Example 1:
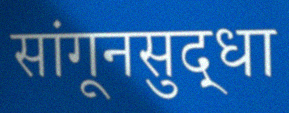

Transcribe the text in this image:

सांगूनसुद्धा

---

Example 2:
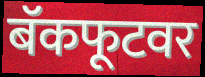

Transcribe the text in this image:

बॅकफूटवर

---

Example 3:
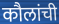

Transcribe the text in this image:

कौलांची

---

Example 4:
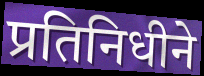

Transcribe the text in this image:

प्रतिनिधीने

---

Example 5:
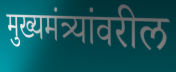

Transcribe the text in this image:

मुख्यमंत्र्यांवरील